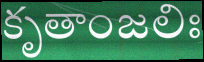
కృతాంజలిః